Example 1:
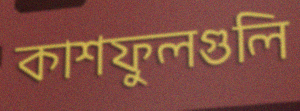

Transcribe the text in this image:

কাশফুলগুলি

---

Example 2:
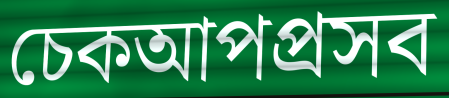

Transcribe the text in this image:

চেকআপপ্রসব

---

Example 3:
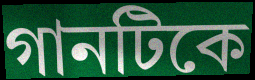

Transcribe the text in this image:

গানটিকে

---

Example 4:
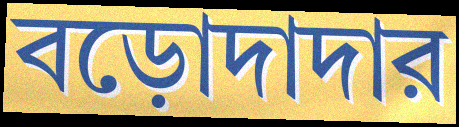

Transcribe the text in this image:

বড়োদাদার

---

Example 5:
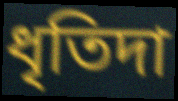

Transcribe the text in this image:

ধৃতিদা